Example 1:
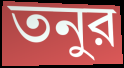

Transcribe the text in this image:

তনুর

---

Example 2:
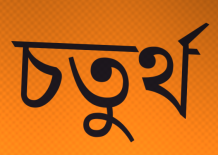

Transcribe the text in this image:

চতুর্থ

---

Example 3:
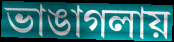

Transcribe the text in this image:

ভাঙাগলায়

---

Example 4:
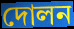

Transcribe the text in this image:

দোলন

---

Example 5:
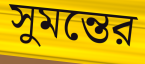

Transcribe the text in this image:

সুমন্তের